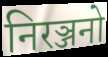
निरञ्जनो